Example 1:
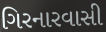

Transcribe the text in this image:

ગિરનારવાસી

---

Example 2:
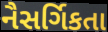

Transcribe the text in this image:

નૈસર્ગિકતા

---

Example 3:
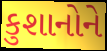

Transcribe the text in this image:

કુશાનોને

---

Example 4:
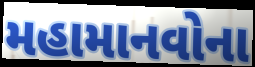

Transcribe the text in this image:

મહામાનવોના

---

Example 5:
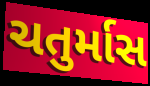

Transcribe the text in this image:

ચતુર્માસ